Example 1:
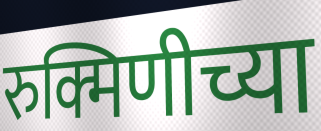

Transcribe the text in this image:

रुक्मिणीच्या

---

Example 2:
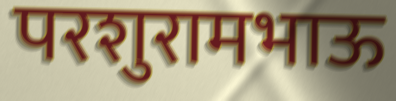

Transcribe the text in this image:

परशुरामभाऊ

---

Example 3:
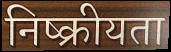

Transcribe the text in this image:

निष्क्रीयता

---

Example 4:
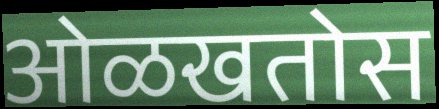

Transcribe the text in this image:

ओळखतोस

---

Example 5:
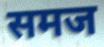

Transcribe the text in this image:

समज